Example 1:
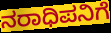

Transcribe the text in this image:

ನರಾಧಿಪನಿಗೆ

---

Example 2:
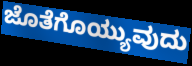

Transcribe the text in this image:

ಜೊತೆಗೊಯ್ಯುವುದು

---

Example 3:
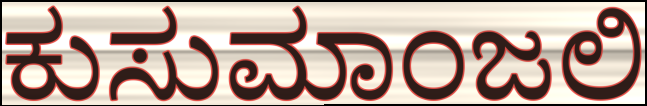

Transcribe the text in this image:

ಕುಸುಮಾಂಜಲಿ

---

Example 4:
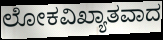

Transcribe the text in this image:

ಲೋಕವಿಖ್ಯಾತವಾದ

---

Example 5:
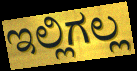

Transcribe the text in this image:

ಇಲ್ಲಿಗಲ್ಲ